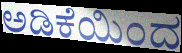
ಅಡಿಕೆಯಿಂದ